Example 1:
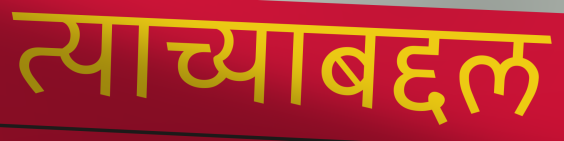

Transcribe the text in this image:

त्याच्याबद्दल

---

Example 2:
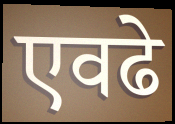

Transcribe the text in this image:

एवढे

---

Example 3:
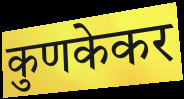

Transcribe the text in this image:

कुणकेकर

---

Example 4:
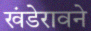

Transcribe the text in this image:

खंडेरावने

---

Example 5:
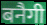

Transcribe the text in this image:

बनैगी